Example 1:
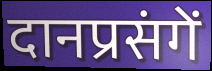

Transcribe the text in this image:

दानप्रसंगें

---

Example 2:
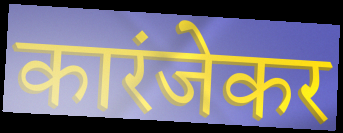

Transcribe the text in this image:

कारंजेकर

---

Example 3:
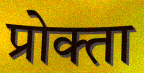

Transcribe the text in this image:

प्रोक्ता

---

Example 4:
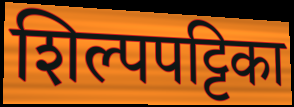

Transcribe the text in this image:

शिल्पपट्टिका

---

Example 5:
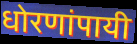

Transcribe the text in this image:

धोरणांपायी